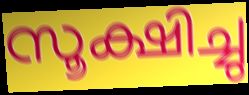
സൂക്ഷിച്ചു